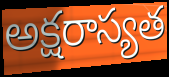
అక్షరాస్యత